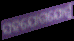
ସହଯୋଗଯୋଗୁଁ